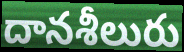
దానశీలురు